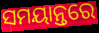
ସମୟାନ୍ତରେ